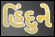
હિંદુને